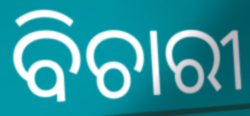
ବିଚାରୀ